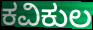
ಕವಿಕುಲ